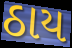
ઠાય